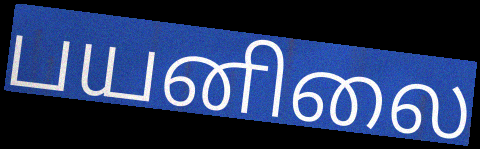
பயனிலை